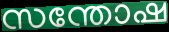
സന്തോഷ